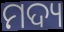
ମଦ୍ୟ